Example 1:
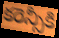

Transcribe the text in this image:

కరెన్సీకి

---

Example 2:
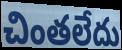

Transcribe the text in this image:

చింతలేదు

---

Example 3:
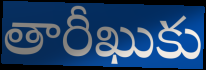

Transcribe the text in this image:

తారీఖుకు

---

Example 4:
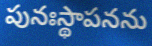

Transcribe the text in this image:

పునఃస్థాపనను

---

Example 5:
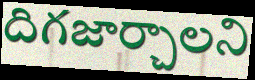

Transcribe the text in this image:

దిగజార్చాలని